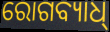
ରୋଗବ୍ୟାଧ୍